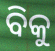
ବିକୁ